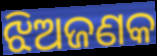
ଝିଅଜଣକ